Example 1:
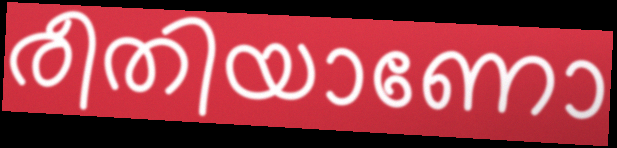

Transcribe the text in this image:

രീതിയാണോ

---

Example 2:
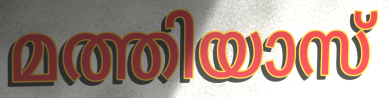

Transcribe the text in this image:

മത്തിയാസ്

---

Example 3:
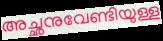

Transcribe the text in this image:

അച്ഛനുവേണ്ടിയുള്ള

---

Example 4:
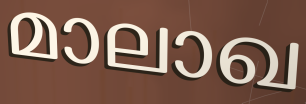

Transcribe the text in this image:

മാലാഖ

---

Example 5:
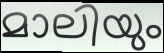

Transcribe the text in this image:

മാലിയും